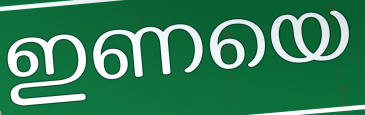
ഇണയെ